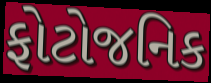
ફોટોજનિક